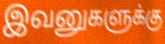
இவனுகளுக்கு